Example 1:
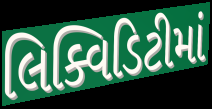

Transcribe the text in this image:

લિક્વિડિટીમાં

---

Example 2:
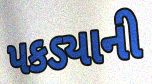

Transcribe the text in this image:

પકડ્યાની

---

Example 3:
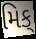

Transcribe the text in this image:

મિક્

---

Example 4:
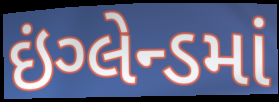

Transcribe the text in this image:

ઇંગ્લેન્ડમાં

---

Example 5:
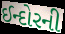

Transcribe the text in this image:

ઈન્દોરની